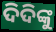
ଦିଦିଙ୍କୁ